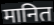
मानित